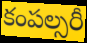
కంపల్సరీ